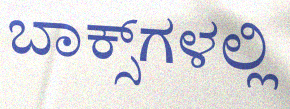
ಬಾಕ್ಸ್‌ಗಳಲ್ಲಿ